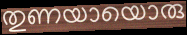
തുണയായൊരു